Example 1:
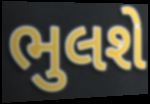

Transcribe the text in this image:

ભુલશે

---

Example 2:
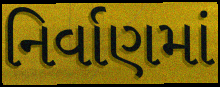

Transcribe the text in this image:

નિર્વાણમાં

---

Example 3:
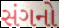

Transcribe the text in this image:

સંગનો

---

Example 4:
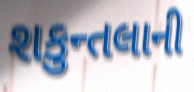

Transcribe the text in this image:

શકુન્તલાની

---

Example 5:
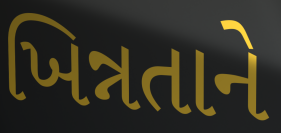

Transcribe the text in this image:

ખિન્નતાને